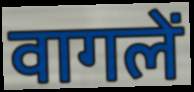
वागलें